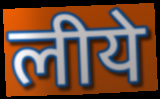
लीये